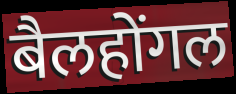
बैलहोंगल